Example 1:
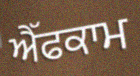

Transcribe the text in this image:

ਐੱਫਕਾਮ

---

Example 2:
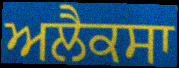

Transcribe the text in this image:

ਅਲੈਕਸਾ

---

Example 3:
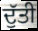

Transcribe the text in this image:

ਦੁੱਤੀ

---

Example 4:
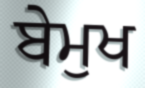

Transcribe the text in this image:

ਬੇਮੁਖ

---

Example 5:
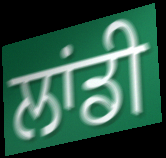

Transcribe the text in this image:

ਲਾਂਡੀ